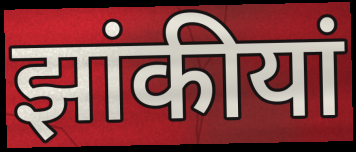
झांकीयां